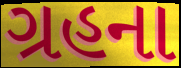
ગ્રહના